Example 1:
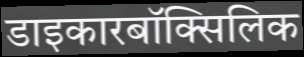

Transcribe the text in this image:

डाइकारबॉक्सिलिक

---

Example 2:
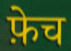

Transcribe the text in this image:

फ़ेच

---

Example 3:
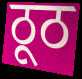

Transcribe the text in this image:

ठूठ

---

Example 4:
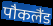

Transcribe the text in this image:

पौकलैंड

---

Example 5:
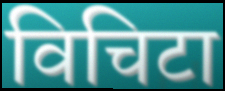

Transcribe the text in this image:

विचिटा